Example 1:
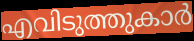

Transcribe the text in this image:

എവിടുത്തുകാർ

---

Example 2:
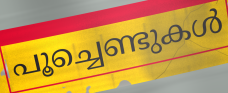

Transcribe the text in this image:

പൂച്ചെണ്ടുകൾ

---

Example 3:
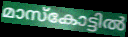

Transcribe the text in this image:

മാസ്കോട്ടിൽ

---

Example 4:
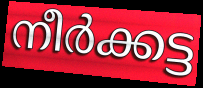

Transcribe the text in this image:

നീർക്കട്ട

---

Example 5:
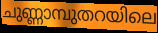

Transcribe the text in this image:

ചുണ്ണാമ്പുതറയിലെ